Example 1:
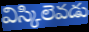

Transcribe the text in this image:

విస్కిలెవడు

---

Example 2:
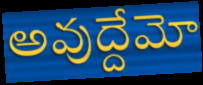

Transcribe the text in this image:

అవుద్దేమో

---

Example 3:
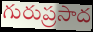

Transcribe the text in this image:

గురుప్రసాద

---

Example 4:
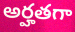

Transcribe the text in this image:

అర్హతగా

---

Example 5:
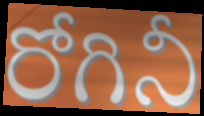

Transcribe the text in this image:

రోగినీ